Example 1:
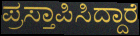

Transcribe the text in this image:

ಪ್ರಸ್ತಾಪಿಸಿದ್ದಾರೆ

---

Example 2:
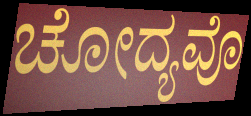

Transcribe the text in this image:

ಚೋದ್ಯವೊ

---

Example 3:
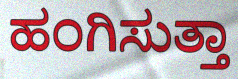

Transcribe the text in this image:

ಹಂಗಿಸುತ್ತಾ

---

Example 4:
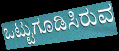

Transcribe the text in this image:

ಒಟ್ಟುಗೂಡಿಸಿರುವ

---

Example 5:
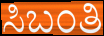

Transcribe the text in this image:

ಸಿಬಂತಿ